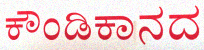
ಕೌಂಡಿಕಾನದ